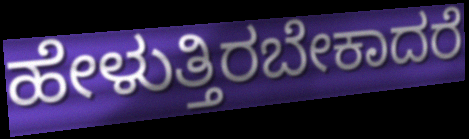
ಹೇಳುತ್ತಿರಬೇಕಾದರೆ